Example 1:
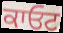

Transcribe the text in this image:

ਕਾਓਟ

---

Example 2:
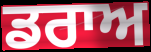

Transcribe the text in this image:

ਡਰਾਅ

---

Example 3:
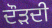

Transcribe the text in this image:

ਦੌੜਦੀ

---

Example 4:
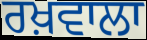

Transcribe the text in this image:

ਰਖ਼ਵਾਲਾ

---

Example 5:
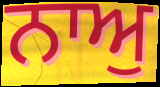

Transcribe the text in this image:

ਨਾਅੁ